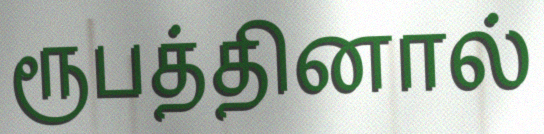
ரூபத்தினால்